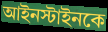
আইনস্টাইনকে